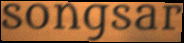
songsar